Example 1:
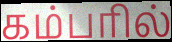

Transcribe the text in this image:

கம்பரில்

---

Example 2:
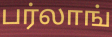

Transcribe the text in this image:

பர்லாங்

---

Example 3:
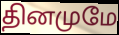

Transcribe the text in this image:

தினமுமே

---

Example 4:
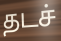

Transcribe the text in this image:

தடச்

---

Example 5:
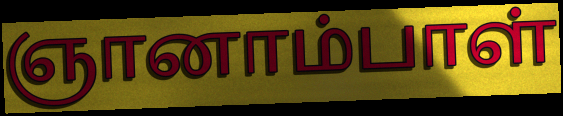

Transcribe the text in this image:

ஞானாம்பாள்